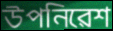
উপনিৱেশ